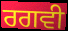
ਰਗਵੀ